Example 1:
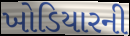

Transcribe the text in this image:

ખોડિયારની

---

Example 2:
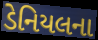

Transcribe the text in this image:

ડેનિયલના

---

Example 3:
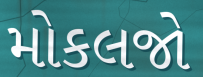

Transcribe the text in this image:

મોકલજો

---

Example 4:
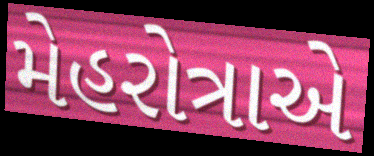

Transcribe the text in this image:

મેહરોત્રાએ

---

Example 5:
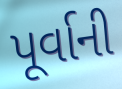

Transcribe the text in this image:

પૂર્વાની